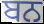
ਬਨ